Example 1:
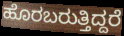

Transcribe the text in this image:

ಹೊರಬರುತ್ತಿದ್ದರೆ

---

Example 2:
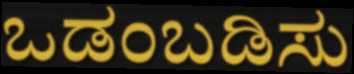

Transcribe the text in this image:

ಒಡಂಬಡಿಸು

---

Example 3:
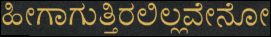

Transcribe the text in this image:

ಹೀಗಾಗುತ್ತಿರಲಿಲ್ಲವೇನೋ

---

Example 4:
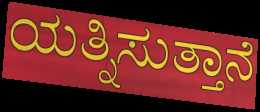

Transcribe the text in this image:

ಯತ್ನಿಸುತ್ತಾನೆ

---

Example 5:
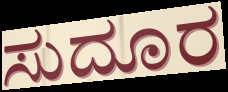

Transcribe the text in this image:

ಸುದೂರ